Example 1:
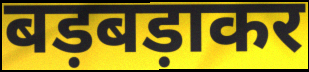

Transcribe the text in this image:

बड़बड़ाकर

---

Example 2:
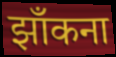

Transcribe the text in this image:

झाँकना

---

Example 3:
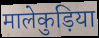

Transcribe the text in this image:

मालेकुड़िया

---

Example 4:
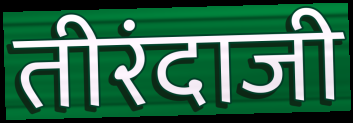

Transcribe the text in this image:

तीरंदाजी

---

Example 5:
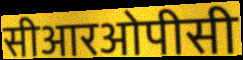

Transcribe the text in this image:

सीआरओपीसी